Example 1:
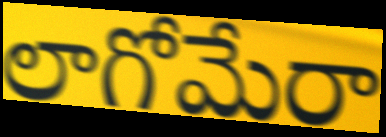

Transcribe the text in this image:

లాగోమేరా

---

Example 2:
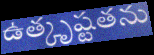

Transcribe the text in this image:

ఉత్కృష్టతను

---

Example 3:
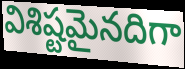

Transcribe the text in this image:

విశిష్టమైనదిగా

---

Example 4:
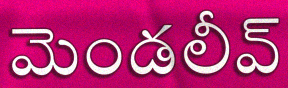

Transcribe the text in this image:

మెండలీవ్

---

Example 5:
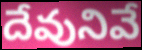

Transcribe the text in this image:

దేవునివే